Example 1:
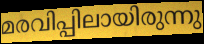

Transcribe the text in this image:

മരവിപ്പിലായിരുന്നു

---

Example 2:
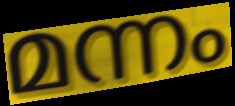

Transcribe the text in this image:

മന്നം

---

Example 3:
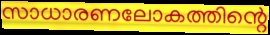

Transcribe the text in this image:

സാധാരണലോകത്തിന്റെ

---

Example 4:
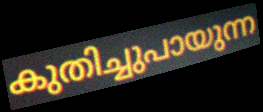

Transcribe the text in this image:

കുതിച്ചുപായുന്ന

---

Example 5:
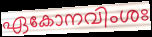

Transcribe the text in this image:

ഏകോനവിംശഃ